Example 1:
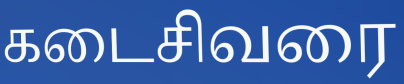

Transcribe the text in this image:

கடைசிவரை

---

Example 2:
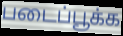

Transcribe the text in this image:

படைப்பூக்க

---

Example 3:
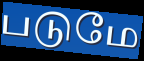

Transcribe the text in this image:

படுமே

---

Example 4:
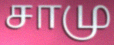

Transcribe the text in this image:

சாமு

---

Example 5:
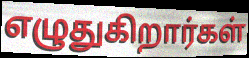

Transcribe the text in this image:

எழுதுகிறார்கள்